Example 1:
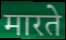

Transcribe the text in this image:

मारते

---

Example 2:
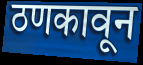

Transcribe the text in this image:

ठणकावून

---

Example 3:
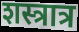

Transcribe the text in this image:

शस्त्रात्र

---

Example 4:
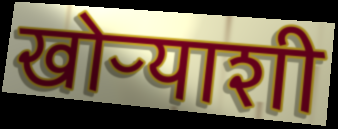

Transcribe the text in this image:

खोऱ्याशी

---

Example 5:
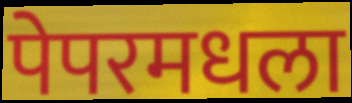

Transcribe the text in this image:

पेपरमधला